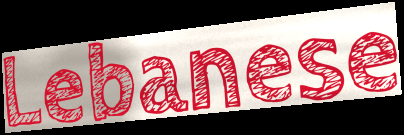
Lebanese